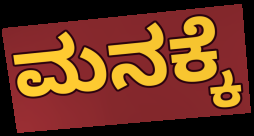
ಮನಕ್ಕೆ